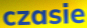
czasie